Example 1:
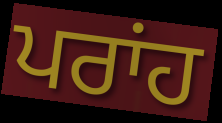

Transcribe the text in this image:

ਪਰਾਂਹ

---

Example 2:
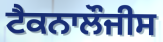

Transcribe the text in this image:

ਟੈਕਨਾਲੌਜੀਸ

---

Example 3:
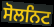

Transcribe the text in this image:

ਸੋਲਨਿਟ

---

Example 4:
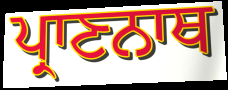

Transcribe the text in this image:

ਪ੍ਰਾਣਨਾਥ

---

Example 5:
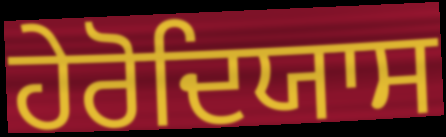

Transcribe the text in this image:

ਹੇਰੋਦਿਯਾਸ